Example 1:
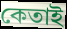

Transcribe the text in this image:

কেতাই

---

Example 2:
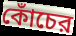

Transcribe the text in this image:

কোঁচের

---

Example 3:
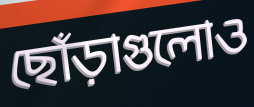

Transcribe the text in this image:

ছোঁড়াগুলোও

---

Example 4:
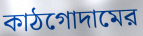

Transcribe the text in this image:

কাঠগোদামের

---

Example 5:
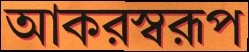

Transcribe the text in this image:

আকরস্বরূপ